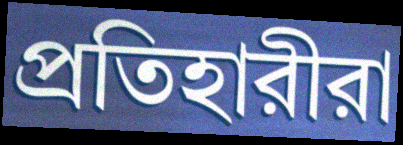
প্রতিহারীরা